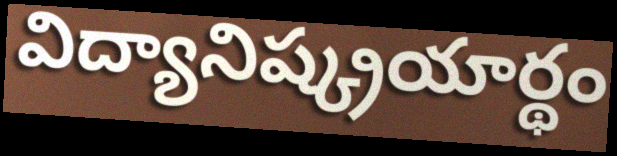
విద్యానిష్క్రయార్థం